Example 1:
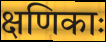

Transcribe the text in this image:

क्षणिकाः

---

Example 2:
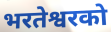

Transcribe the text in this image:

भरतेश्वरको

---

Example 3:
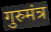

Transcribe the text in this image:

गुरुमंत्र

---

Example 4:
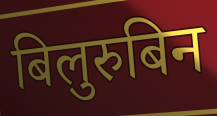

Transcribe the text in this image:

बिलुरुबिन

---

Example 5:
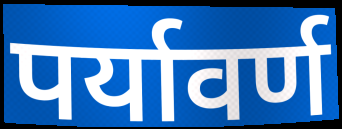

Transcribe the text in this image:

पर्यावर्ण